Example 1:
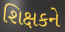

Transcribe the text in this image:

શિક્ષકને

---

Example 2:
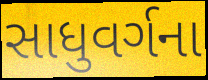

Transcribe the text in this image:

સાધુવર્ગના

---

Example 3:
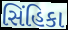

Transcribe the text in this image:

સિંહિકા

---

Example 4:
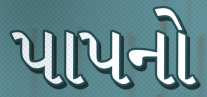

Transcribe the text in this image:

પાપનો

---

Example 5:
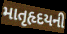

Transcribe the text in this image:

માતૃહૃદયની